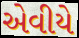
એવીયે